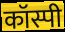
कॉस्पी